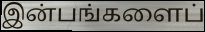
இன்பங்களைப்